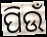
ପିଉଁ